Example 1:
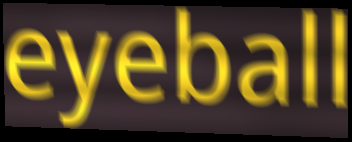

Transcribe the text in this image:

eyeball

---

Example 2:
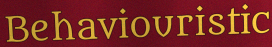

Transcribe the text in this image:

Behaviouristic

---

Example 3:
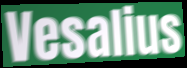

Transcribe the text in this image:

Vesalius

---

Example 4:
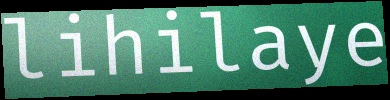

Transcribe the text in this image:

lihilaye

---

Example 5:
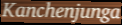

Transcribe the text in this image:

Kanchenjunga